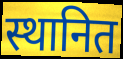
स्थानित